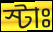
স্টাঃ